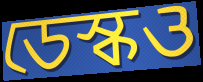
ডেস্কও